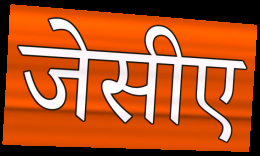
जेसीए